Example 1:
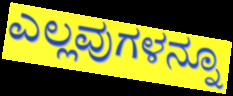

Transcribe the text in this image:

ಎಲ್ಲವುಗಳನ್ನೂ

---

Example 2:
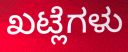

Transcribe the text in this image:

ಖಟ್ಲೆಗಳು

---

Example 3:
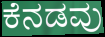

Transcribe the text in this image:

ಕೆನಡವು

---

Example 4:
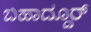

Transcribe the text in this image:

ಬಹಾದ್ದೂರ್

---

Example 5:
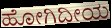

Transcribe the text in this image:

ಹೋಗಿದೀಯ